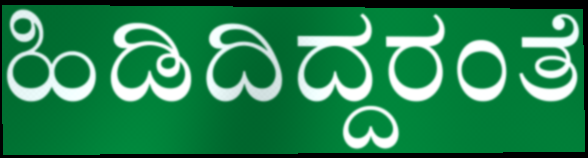
ಹಿಡಿದಿದ್ದರಂತೆ